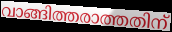
വാങ്ങിത്തരാത്തതിന്